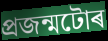
প্ৰজন্মটোৰ